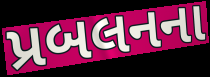
પ્રબલનના